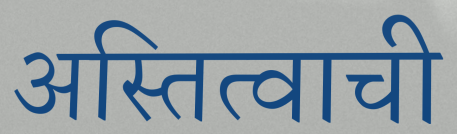
अस्तित्वाची